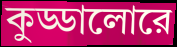
কুড্ডালোরে